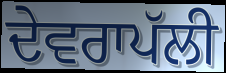
ਦੇਵਰਾਪੱਲੀ